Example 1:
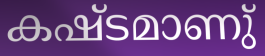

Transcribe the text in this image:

കഷ്ടമാണു്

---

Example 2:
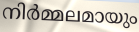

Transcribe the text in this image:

നിർമ്മലമായും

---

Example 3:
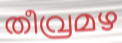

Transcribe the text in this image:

തീവ്രമഴ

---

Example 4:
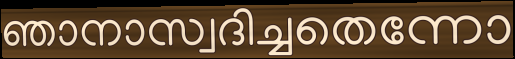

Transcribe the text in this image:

ഞാനാസ്വദിച്ചതെന്നോ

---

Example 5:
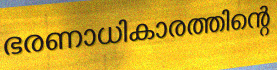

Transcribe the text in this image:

ഭരണാധികാരത്തിന്റെ